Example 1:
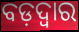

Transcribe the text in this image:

ବଡ଼ଦ୍ୱାର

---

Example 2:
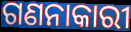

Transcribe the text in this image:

ଗଣନାକାରୀ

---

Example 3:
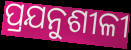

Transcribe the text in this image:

ପ୍ରଯନୁଶୀଳୀ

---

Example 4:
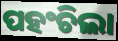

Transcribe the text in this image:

ପହଂଚିଲା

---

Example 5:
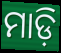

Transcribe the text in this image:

ମାଡ଼ି